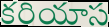
కరియాస